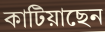
কাটিয়াছেন